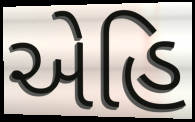
એહિ